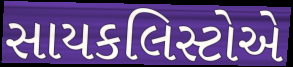
સાયકલિસ્ટોએ